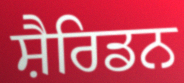
ਸ਼ੈਰਿਡਨ